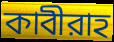
কাবীরাহ